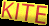
KITE